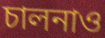
চালনাও